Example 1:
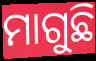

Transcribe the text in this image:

ମାଗୁଛି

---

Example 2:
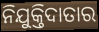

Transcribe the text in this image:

ନିଯୁକ୍ତିଦାତାର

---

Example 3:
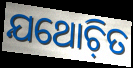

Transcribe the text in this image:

ଯଥୋଚ଼ିତ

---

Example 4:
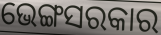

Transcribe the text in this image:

ଭେଙ୍ଗସରକାର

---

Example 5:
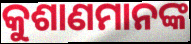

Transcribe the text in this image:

କୁଶାଣମାନଙ୍କ